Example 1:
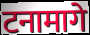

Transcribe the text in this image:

टनामागे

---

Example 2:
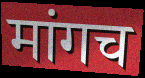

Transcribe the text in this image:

मांगच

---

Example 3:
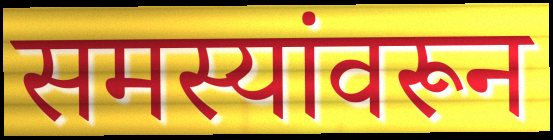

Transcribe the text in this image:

समस्यांवरून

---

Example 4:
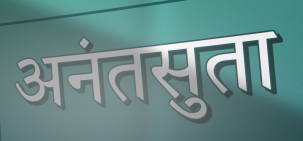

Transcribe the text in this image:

अनंतसुता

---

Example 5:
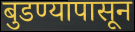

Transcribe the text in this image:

बुडण्यापासून